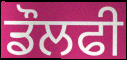
ਡੌਲਫੀ